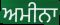
ਅਮੀਨਾ